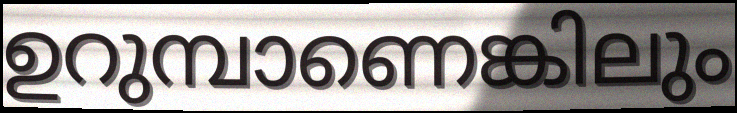
ഉറുമ്പാണെങ്കിലും